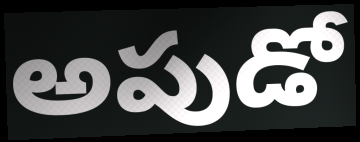
అపుడో